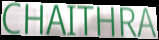
CHAITHRA